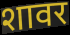
शावर